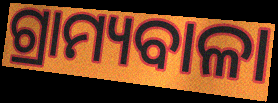
ଗ୍ରାମ୍ୟବାଳା